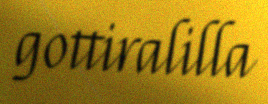
gottiralilla